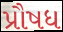
પ્રૌષધ